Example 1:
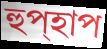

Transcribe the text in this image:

হুপ্হাপ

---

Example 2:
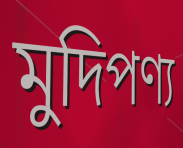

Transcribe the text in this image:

মুদিপণ্য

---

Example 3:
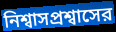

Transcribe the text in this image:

নিশ্বাসপ্রশ্বাসের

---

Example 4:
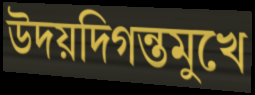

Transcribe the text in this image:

উদয়দিগন্তমুখে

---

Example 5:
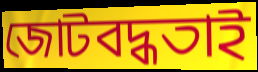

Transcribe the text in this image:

জোটবদ্ধতাই